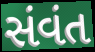
સંવંત